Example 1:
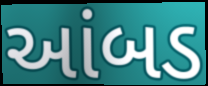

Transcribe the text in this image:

આંબડ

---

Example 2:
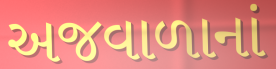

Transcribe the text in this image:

અજવાળાનાં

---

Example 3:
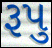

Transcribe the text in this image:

રૂપુ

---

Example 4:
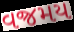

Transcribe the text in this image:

વજ્રમય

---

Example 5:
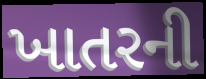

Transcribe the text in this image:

ખાતરની